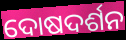
ଦୋଷଦର୍ଶନ